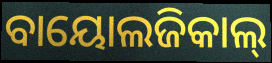
ବାୟୋଲଜିକାଲ୍